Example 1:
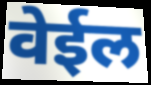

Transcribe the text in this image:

वेईल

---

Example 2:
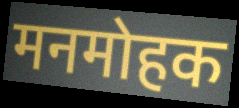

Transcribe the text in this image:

मनमोहक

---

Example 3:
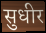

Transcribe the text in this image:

सुधीर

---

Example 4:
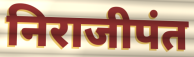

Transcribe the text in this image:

निराजीपंत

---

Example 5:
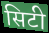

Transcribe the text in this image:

सिटी